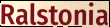
Ralstonia